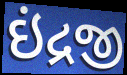
ઇંદ્રજી